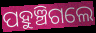
ପହୁଞ୍ଚିଗଲେ